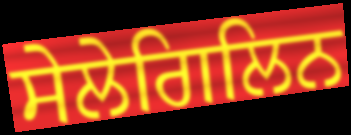
ਸੇਲੇਗਿਲਿਨ